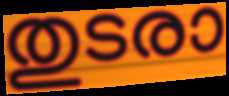
തുടരാ